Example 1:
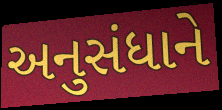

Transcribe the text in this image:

અનુસંધાને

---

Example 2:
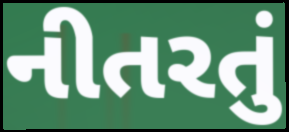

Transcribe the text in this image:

નીતરતું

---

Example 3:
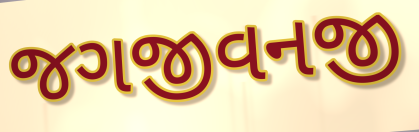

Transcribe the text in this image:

જગજીવનજી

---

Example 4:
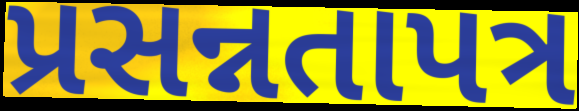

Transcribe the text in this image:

પ્રસન્નતાપત્ર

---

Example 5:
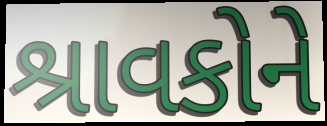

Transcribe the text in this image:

શ્રાવકોને